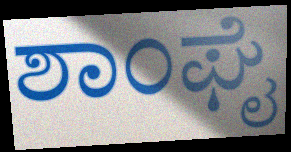
ಶಾಂಘೈ